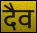
दैव